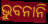
ଭୁବନାନି